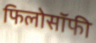
फिलोसॉफी